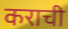
कराची